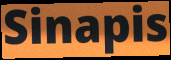
Sinapis